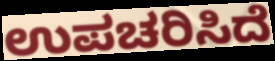
ಉಪಚರಿಸಿದೆ